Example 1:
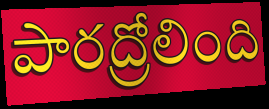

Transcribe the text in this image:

పారద్రోలింది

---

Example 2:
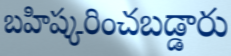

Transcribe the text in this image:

బహిష్కరించబడ్డారు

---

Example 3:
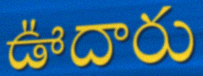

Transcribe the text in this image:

ఊదారు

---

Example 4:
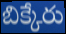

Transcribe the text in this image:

బిక్కేరు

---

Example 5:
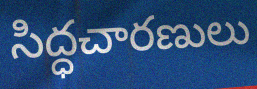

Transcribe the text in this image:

సిద్ధచారణులు